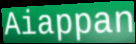
Aiappan